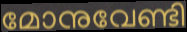
മോനുവേണ്ടി